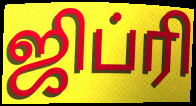
ஜிப்ரி